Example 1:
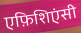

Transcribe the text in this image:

एफ़िशिएंसी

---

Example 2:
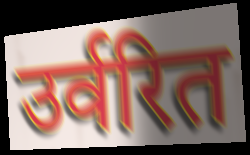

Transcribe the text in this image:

उर्वरित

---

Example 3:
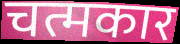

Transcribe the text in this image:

चत्मकार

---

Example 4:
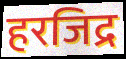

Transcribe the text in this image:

हरजिद्र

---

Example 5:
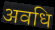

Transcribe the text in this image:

अवधि